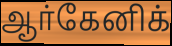
ஆர்கேனிக்